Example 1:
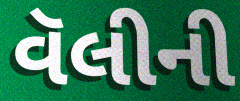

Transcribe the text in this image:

વૅલીની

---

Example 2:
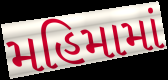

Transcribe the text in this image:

મહિમામાં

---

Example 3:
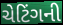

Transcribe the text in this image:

ચેટિંગની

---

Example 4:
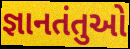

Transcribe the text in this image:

જ્ઞાનતંતુઓ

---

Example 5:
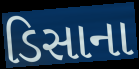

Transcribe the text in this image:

ડિસાના